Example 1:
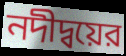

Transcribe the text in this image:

নদীদ্বয়ের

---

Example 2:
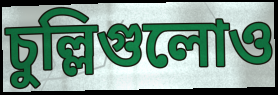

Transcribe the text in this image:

চুল্লিগুলোও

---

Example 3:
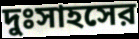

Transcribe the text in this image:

দুঃসাহসের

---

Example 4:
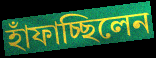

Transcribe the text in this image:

হাঁফাচ্ছিলেন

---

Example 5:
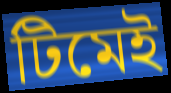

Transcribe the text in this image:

টিমেই